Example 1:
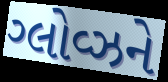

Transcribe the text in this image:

ગ્લોવ્ઝને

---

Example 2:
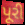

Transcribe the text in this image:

પૂરી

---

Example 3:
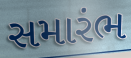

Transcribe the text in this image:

સમારંભ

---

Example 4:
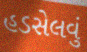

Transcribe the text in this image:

હડસેલવું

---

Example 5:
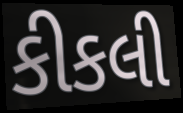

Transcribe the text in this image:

કીકલી